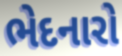
ભેદનારો